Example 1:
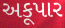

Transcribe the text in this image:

અકૂપાર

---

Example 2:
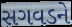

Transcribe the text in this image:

સગવડને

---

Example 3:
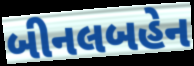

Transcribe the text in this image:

બીનલબહેન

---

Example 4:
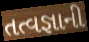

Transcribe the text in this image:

તત્વજ્ઞાની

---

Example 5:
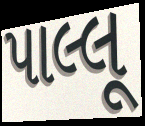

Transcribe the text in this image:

પાલ્લૂ